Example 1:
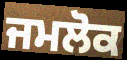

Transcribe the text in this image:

ਜਮਲੋਕ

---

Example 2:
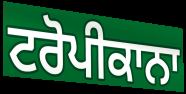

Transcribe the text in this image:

ਟਰੋਪੀਕਾਨਾ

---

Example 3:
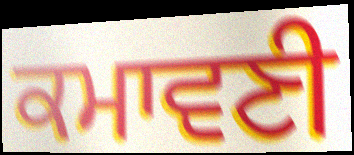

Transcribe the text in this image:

ਕਮਾਵਣੀ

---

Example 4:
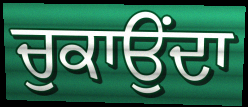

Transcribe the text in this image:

ਚੁਕਾਉਂਦਾ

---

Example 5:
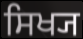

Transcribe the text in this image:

ਸਿਖ੍ਯ